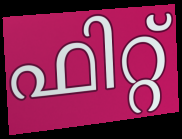
ഫിറ്റ്